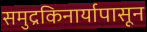
समुद्रकिनार्यापासून